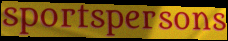
sportspersons